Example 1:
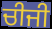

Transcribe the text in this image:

ਚੀਜੀ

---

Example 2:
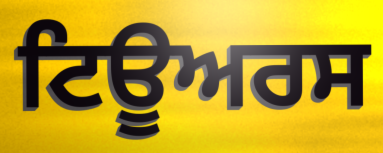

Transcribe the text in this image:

ਟਿਊਅਰਸ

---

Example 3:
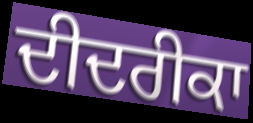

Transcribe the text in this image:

ਦੀਦਰੀਕਾ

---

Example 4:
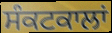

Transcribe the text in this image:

ਸੰਕਟਕਾਲਾਂ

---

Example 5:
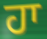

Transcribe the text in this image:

ਹਾ